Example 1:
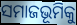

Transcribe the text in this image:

ସମାଜଭୂମିକୁ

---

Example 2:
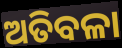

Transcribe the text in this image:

ଅତିବଳା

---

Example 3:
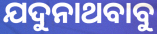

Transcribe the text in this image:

ଯଦୁନାଥବାବୁ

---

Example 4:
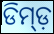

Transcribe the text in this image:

ଡିମ୍ଡ଼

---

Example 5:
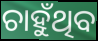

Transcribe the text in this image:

ଚାହୁଁଥିବ